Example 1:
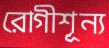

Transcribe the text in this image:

রোগীশূন্য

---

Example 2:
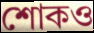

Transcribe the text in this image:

শোকও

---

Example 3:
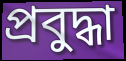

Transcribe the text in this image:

প্রবুদ্ধা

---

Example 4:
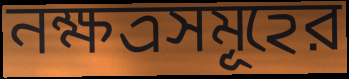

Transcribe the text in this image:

নক্ষত্রসমূহের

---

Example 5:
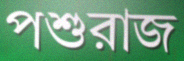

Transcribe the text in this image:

পশুরাজ